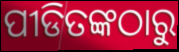
ପୀଡିତଙ୍କଠାରୁ